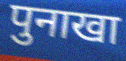
पुनाखा